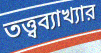
তত্ত্বব্যাখ্যার